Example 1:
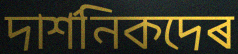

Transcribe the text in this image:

দাৰ্শনিকদেৰ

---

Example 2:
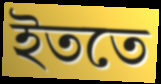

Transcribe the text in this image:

ইততে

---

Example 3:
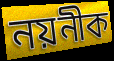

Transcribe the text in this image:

নয়নীক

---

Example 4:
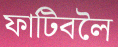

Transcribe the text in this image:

ফাটিবলৈ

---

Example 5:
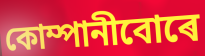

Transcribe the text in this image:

কোম্পানীবোৰে